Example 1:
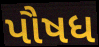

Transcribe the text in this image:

પૌષધ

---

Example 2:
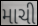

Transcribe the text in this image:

માચી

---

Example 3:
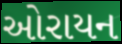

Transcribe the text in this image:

ઓરાયન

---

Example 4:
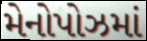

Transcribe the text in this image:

મેનોપોઝમાં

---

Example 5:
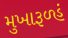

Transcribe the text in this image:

મુખારૂળ્હં